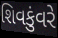
શિવકુંવરે